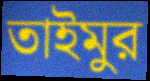
তাইমুর